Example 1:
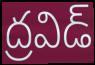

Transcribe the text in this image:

ద్రవిడ్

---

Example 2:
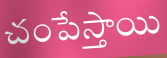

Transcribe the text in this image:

చంపేస్తాయి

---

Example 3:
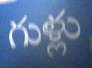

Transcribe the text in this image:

గుళ్లు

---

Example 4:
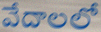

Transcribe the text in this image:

వేదాలలో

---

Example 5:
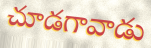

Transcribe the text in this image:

చూడగావాడు